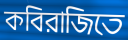
কবিরাজিতে